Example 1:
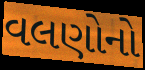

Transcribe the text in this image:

વલણોનો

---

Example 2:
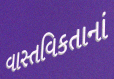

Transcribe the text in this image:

વાસ્તવિકતાનાં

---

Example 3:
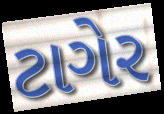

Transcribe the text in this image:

ટાગેર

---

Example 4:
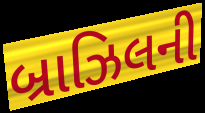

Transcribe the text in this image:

બ્રાઝિલની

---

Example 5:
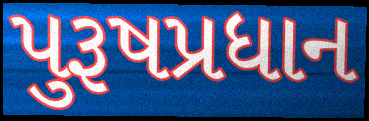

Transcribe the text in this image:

પુરૂષપ્રધાન